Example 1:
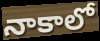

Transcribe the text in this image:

నాకాలో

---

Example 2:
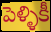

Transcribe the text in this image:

పెళ్ళికీ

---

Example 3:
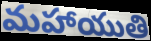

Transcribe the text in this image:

మహాయుతి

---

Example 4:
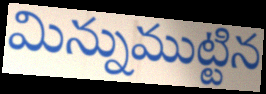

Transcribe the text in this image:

మిన్నుముట్టిన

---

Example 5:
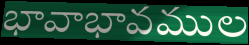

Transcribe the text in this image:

భావాభావముల